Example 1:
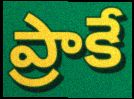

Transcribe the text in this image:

ప్రాకే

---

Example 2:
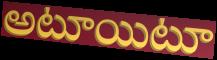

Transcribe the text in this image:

అటూయిటూ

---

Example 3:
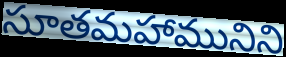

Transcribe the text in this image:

సూతమహామునిని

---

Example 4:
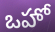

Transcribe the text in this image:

ఒహో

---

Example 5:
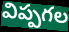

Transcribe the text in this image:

విప్పగల